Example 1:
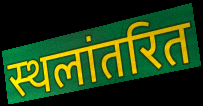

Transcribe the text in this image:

स्थलांतरित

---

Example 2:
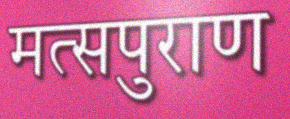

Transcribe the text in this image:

मत्सपुराण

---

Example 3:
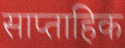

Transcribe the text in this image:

साप्ताहिक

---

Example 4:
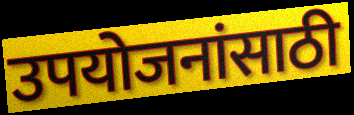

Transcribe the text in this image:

उपयोजनांसाठी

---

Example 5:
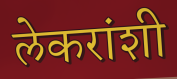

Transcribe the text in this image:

लेकरांशी